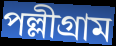
পল্লীগ্রাম